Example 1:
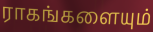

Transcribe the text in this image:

ராகங்களையும்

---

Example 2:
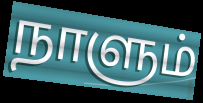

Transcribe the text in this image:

நாளும்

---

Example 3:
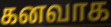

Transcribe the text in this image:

கனவாக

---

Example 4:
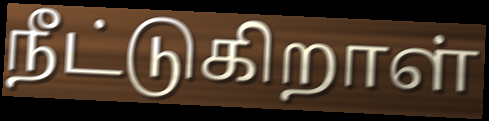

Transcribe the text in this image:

நீட்டுகிறாள்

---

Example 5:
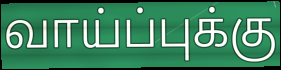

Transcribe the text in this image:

வாய்ப்புக்கு